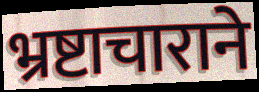
भ्रष्टाचाराने